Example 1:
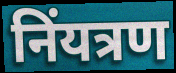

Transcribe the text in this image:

निंयत्रण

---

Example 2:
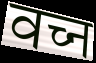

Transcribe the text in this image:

वच्न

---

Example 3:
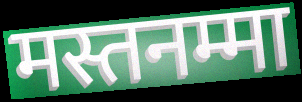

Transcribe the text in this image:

मस्तनम्मा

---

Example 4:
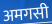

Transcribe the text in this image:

अमगसी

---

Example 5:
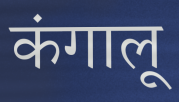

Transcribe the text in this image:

कंगालू